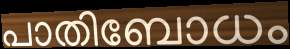
പാതിബോധം